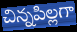
చిన్నపిల్లగా